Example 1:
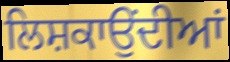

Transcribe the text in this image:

ਲਿਸ਼ਕਾਉਂਦੀਆਂ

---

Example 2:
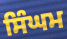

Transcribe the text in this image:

ਸਿੰਘਮ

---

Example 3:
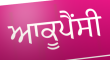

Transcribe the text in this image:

ਆਕੂਪੈਂਸੀ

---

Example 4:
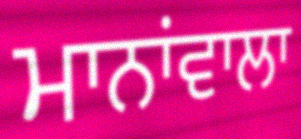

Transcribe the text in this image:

ਮਾਨਾਂਵਾਲਾ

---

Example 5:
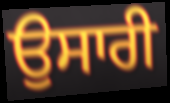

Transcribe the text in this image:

ਉਸਾਰੀ